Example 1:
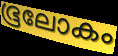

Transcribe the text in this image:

ഭൂലോകം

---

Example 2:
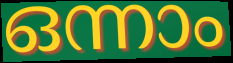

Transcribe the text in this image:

ഒന്നാം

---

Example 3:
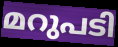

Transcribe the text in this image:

മറുപടി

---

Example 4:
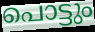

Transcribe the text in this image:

പൊട്ടും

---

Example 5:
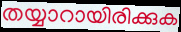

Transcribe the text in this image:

തയ്യാറായിരിക്കുക